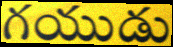
గయుడు